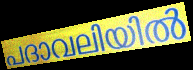
പദാവലിയിൽ